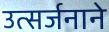
उत्सर्जनाने